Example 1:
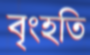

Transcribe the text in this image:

বৃংহতি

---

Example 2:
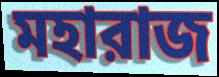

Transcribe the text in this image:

মহারাজ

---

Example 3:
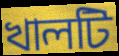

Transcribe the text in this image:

খালটি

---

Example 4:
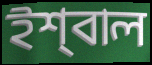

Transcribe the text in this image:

ইশ্‌বাল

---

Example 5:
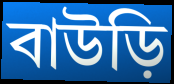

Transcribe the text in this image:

বাউড়ি